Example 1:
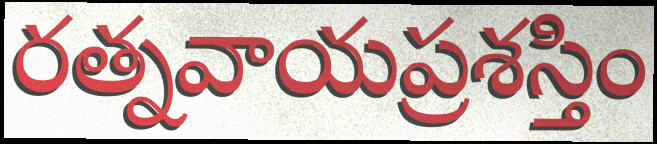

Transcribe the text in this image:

రత్నవాయప్రశస్తిం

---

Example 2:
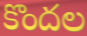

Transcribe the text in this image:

కొందల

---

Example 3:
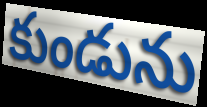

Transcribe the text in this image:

కుండును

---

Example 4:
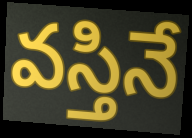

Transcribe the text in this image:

వస్తినే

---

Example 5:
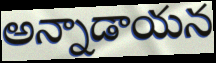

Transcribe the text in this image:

అన్నాడాయన